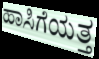
ಹಾಸಿಗೆಯತ್ತ